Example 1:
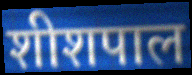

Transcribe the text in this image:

शीशपाल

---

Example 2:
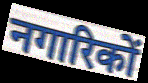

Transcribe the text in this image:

नगारिकों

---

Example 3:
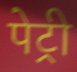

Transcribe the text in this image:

पेट्री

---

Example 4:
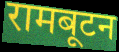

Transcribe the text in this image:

रामबूटन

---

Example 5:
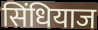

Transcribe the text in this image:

सिंधियाज